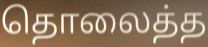
தொலைத்த